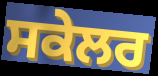
ਸਕੇਲਰ